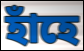
হাঁহে